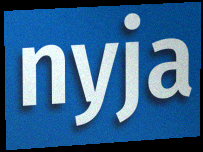
nyja